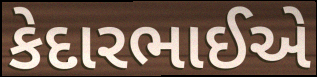
કેદારભાઈએ